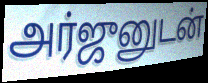
அர்ஜுனுடன்